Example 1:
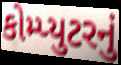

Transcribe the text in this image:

કોમ્પ્યુટરનું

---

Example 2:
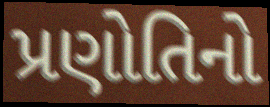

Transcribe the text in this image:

પ્રણોતિનો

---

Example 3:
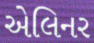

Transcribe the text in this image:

એલિનર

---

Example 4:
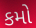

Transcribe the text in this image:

કમો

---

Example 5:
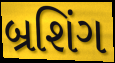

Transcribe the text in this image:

બ્રશિંગ